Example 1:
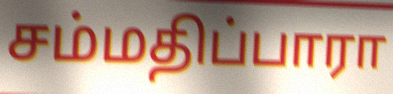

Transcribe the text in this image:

சம்மதிப்பாரா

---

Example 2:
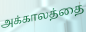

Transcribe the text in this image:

அக்காலத்தை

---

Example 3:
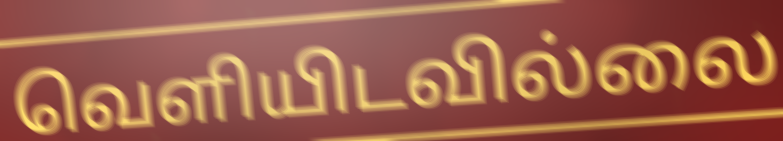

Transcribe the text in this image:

வெளியிடவில்லை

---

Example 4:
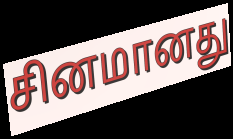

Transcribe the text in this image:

சினமானது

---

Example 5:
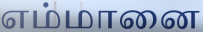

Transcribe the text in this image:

எம்மானை